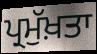
ਪ੍ਰਮੁੱਖ਼ਤਾ